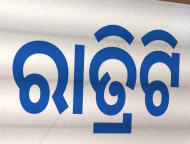
ରାତ୍ରିଟି